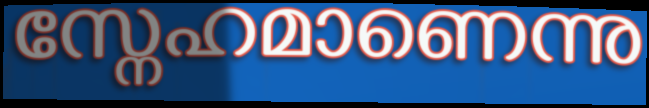
സ്നേഹമാണെന്നു